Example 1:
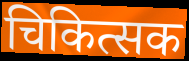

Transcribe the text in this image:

चिकित्सक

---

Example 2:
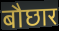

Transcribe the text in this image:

बौछार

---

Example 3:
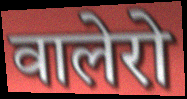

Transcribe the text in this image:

वालेरो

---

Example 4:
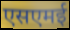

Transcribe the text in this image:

एसएमई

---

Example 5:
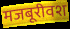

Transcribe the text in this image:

मजबूरीवश